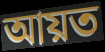
আয়ত